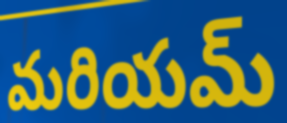
మరియమ్